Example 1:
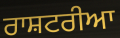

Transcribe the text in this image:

ਰਾਸ਼ਟਰੀਆ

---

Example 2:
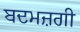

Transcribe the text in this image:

ਬਦਮਜ਼ਗੀ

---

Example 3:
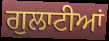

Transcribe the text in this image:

ਗੁਲਾਟੀਆਂ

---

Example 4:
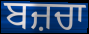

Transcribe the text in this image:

ਬਜ਼ਚਾ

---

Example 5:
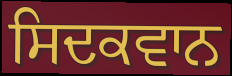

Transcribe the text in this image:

ਸਿਦਕਵਾਨ